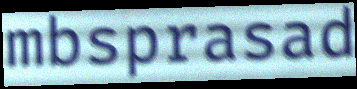
mbsprasad